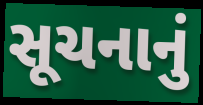
સૂચનાનું